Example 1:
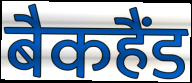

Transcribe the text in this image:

बैकहैंड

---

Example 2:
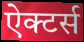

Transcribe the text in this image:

ऐक्‍टर्स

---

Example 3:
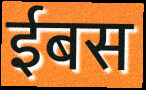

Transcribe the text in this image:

ईबस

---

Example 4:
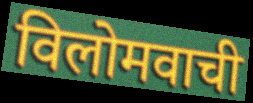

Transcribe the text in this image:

विलोमवाची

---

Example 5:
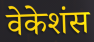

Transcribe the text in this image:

वेकेशंस